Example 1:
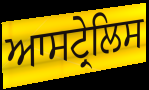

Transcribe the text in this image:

ਆਸਟ੍ਰੇਲਿਸ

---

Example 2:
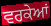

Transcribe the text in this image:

ਵਰਕੇਆਂ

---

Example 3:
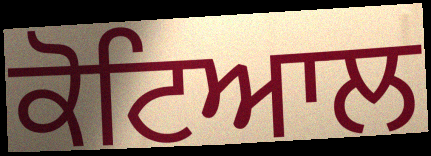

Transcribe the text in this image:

ਕੋਟਿਆਲ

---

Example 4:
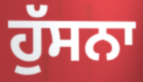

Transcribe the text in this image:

ਹੁੱਸਨਾ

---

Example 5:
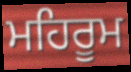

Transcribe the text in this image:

ਮਹਿਰੂਮ